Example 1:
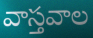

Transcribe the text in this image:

వాస్తవాల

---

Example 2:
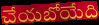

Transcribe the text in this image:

చేయబోయేది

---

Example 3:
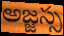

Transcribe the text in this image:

అజ్జస్స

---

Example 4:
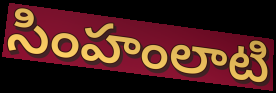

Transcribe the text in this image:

సింహంలాటి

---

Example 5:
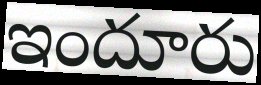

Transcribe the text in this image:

ఇందూరు